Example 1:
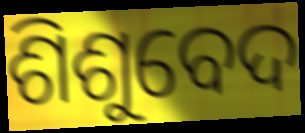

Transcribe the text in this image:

ଶିଶୁବେଦ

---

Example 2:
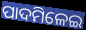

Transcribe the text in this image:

ପାଦମିଳେଇ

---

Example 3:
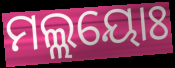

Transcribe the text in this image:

ମଲ୍ଲୟୋଃ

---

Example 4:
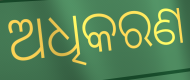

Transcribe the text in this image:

ଅଧିକରଣ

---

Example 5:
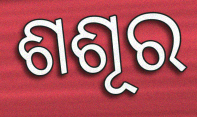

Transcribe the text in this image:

ଶଶୂର